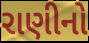
રાણીનો